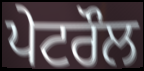
ਪੇਟਰੌਲ